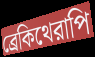
ব্রেকিথেরাপি